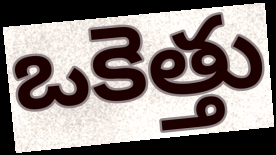
ఒకెత్తు